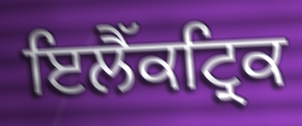
ਇਲੈੱਕਟ੍ਰਿਕ